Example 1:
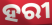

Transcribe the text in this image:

ହରୀ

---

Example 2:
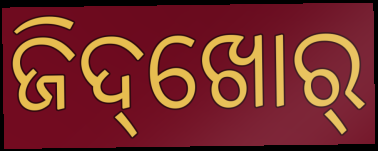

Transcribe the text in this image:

ଜିଦ୍‌ଖୋର୍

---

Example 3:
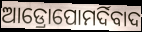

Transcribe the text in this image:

ଆଡ୍ରୋପୋମର୍ଦିବାଦ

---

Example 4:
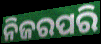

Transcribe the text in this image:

ନିଜରପରି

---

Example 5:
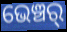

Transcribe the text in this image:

ଭେଞ୍ଚର୍